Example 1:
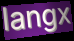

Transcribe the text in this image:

langx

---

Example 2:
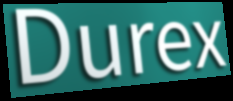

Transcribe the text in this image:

Durex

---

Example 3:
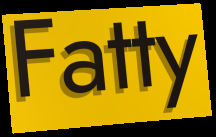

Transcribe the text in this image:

Fatty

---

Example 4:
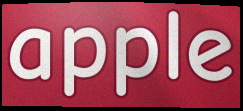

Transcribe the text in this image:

apple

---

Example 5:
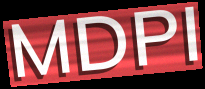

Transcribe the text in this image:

MDPI